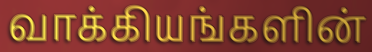
வாக்கியங்களின்